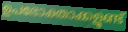
ഉപഭോക്താക്കളുണ്ട്